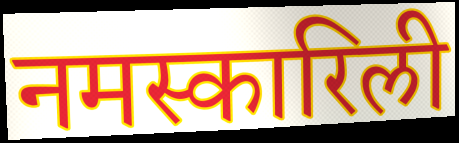
नमस्कारिली